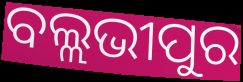
ବଲ୍ଲଭୀପୁର